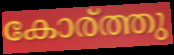
കോര്ത്തു